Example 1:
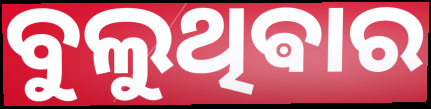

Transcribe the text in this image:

ବୁଲୁଥିଵାର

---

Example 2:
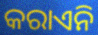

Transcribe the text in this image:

କରାଏନି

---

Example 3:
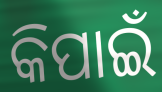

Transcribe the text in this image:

କିପାଇଁ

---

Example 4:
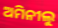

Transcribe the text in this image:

ଅମିନୀଲୁ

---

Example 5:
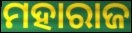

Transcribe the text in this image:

ମହାରାଜ